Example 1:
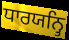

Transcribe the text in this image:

ਧਾਰਯਨ੍ਤਿ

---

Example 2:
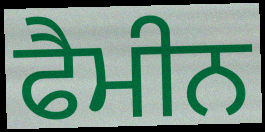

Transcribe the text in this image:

ਫੈਮੀਨ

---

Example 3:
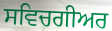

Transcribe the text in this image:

ਸਵਿਚਗੀਅਰ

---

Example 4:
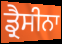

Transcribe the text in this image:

ਡ੍ਰੈਸੀਨਾ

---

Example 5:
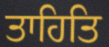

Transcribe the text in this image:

ਤਾਹਿਤਿ